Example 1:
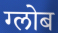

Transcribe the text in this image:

ग्लोब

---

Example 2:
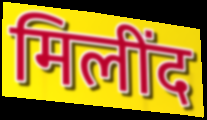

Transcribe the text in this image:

मिलींद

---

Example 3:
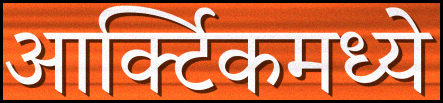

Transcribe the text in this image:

आर्क्टिकमध्ये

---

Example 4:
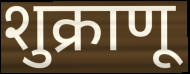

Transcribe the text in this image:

शुक्राणू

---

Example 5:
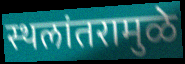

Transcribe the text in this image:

स्थलांतरामुळे